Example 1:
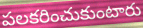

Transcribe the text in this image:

పలకరించుకుంటారు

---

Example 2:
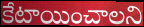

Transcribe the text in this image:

కేటాయించాలని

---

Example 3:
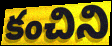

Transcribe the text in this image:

కంచిని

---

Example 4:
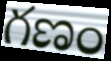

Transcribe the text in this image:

గణం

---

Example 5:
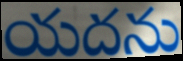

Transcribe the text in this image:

యదను